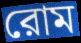
রোম